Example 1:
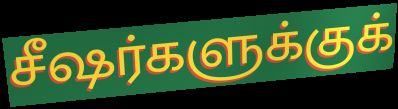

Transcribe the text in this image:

சீஷர்களுக்குக்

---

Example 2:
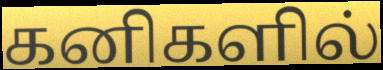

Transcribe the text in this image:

கனிகளில்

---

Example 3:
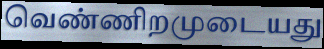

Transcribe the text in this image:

வெண்ணிறமுடையது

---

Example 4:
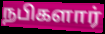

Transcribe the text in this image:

நபிகளார்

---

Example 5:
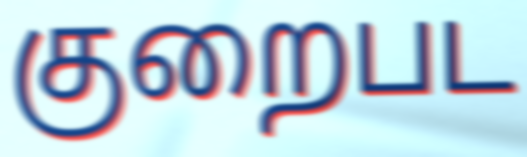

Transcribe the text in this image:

குறைபட